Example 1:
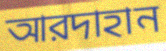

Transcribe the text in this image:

আরদাহান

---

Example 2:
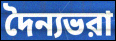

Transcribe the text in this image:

দৈন্যভরা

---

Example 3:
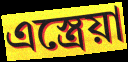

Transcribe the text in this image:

এস্ত্রেয়া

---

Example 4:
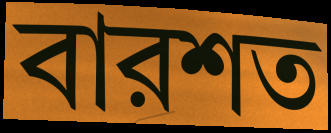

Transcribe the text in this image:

বারশত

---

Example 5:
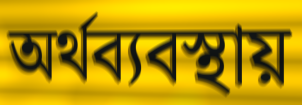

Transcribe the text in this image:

অর্থব্যবস্থায়